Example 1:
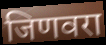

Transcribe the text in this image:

जिणवरा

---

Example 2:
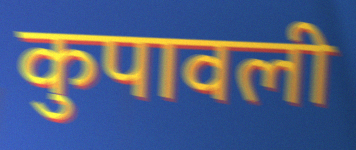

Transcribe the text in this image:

कुपावली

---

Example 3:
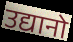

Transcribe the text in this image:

उद्यानो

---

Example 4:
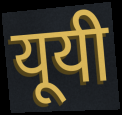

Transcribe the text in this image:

यूयी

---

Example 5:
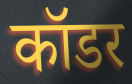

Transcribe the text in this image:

कॉडर